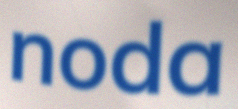
noda